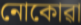
নোকোৱা